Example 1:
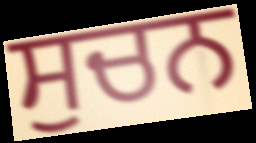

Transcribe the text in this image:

ਸੁਚਨ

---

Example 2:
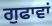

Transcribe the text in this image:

ਗੁਫਾਵਾਂ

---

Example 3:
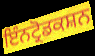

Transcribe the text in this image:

ਇੰਨਟ੍ਰੋਡਕਸ਼ਨ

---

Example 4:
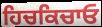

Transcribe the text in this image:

ਹਿਚਕਿਚਾਓ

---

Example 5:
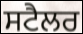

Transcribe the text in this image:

ਸਟੈਲਰ